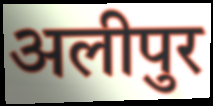
अलीपुर